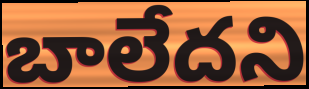
బాలేదని